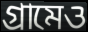
গ্রামেও